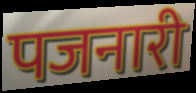
पजनारी